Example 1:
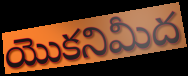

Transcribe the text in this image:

యొకనిమీద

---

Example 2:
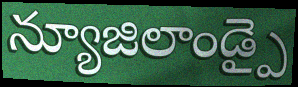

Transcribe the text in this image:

న్యూజిలాండ్పై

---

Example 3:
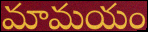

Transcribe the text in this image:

మామయం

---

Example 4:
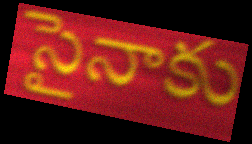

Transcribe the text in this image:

సైనాకు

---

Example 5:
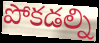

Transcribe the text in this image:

పోకడల్ని